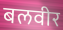
बलवीर